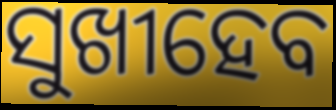
ସୁଖୀହେବ